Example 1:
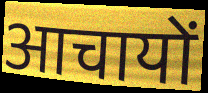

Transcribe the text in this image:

आचायों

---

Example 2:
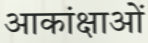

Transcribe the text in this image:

आकांक्षाओं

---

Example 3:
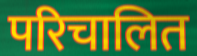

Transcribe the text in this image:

परिचालित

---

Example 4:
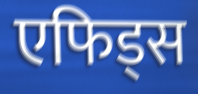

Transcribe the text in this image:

एफिड्स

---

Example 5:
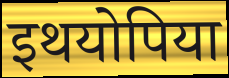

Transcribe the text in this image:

इथयोपिया